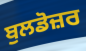
ਬੁਲਡੋਜ਼ਰ